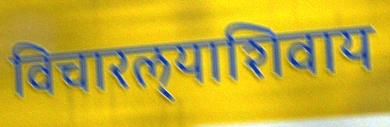
विचारल्याशिवाय